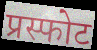
प्रस्फोट